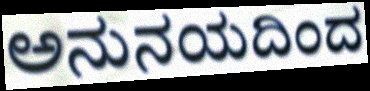
ಅನುನಯದಿಂದ